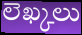
లెఖ్కలు